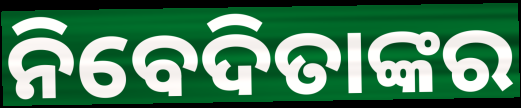
ନିବେଦିତାଙ୍କର